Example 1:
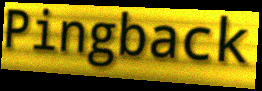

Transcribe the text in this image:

Pingback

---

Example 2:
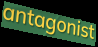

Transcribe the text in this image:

antagonist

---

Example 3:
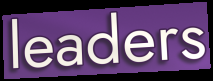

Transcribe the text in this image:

leaders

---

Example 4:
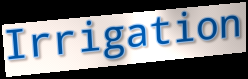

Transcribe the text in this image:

Irrigation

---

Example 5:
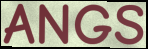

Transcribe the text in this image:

ANGS